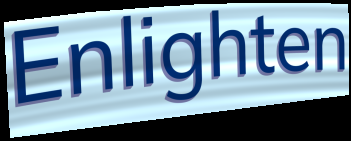
Enlighten